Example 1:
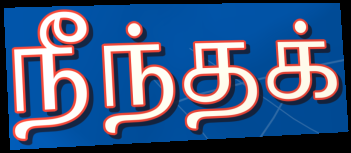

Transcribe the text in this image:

நீந்தக்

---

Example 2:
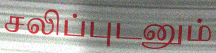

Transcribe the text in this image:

சலிப்புடனும்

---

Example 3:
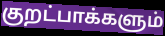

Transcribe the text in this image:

குறட்பாக்களும்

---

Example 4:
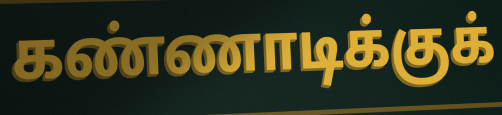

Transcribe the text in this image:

கண்ணாடிக்குக்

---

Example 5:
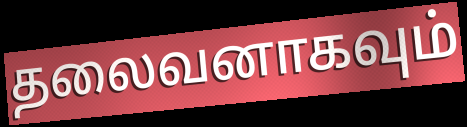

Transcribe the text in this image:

தலைவனாகவும்